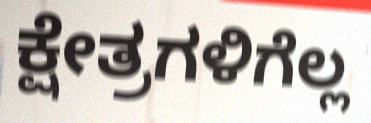
ಕ್ಷೇತ್ರಗಳಿಗೆಲ್ಲ